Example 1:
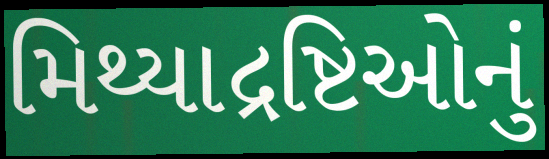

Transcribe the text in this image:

મિથ્યાદ્રષ્ટિઓનું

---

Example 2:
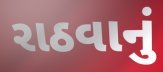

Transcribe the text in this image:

રાઠવાનું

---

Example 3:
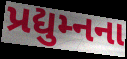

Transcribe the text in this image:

પ્રદ્યુમ્નના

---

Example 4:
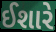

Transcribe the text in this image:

ઈશારે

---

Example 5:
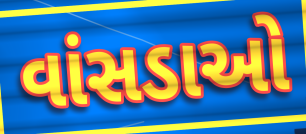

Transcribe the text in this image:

વાંસડાઓ